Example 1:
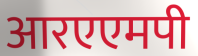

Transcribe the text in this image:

आरएएमपी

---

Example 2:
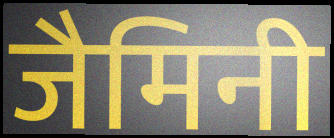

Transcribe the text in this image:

जैमिनी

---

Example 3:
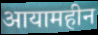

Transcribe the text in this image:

आयामहीन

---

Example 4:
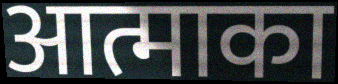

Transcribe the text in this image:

आत्माका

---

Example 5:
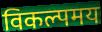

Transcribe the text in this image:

विकल्पमय